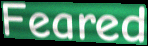
Feared